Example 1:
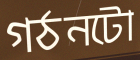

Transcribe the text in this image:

গঠনটো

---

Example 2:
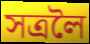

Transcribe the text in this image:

সত্ৰলৈ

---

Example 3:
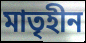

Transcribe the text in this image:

মাতৃহীন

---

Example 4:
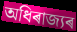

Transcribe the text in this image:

অধিৰাজ্যৰ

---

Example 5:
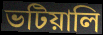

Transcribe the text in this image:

ভটিয়ালি